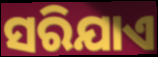
ସରିଯାଏ